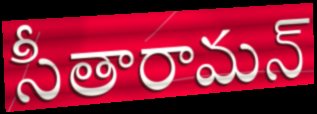
సీతారామన్